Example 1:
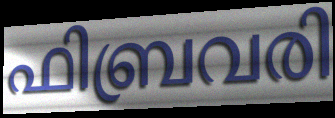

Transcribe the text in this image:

ഫിബ്രവരി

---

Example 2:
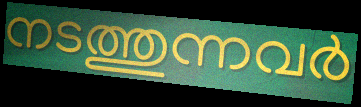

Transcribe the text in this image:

നടത്തുന്നവർ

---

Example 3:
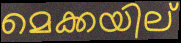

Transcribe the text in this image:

മെക്കയില്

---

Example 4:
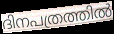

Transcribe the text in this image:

ദിനപത്രത്തിൽ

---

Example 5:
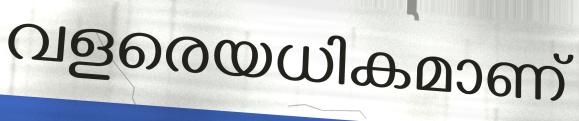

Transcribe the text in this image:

വളരെയധികമാണ്